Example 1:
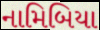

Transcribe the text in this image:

નામિબિયા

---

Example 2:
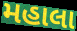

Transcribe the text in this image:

મહાલા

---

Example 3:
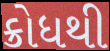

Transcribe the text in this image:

ક્રોધથી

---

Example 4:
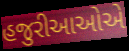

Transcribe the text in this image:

હજુરીઆઓએ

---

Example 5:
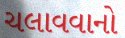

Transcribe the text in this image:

ચલાવવાનો